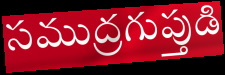
సముద్రగుప్తుడి